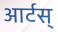
आर्टस्